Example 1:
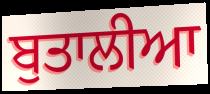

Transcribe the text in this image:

ਬੁਤਾਲੀਆ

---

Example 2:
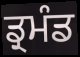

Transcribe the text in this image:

ਡ੍ਰਮੰਡ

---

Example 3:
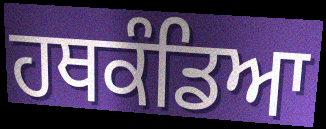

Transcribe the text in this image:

ਹਥਕੰਡਿਆ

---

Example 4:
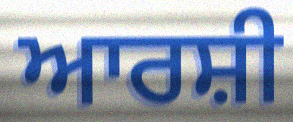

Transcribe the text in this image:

ਆਰਸ਼ੀ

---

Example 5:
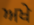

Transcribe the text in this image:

ਅਖੇ